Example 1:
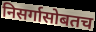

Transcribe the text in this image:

निसर्गासोबतच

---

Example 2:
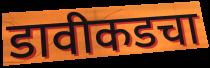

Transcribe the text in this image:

डावीकडचा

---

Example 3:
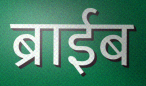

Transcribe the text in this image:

ब्राईब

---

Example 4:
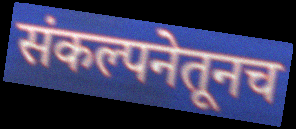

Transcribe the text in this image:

संकल्पनेतूनच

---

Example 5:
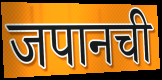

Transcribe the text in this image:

जपानची